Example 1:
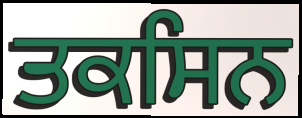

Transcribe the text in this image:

ਤਕਸਿਨ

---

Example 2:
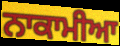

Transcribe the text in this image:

ਨਾਕਾਮੀਆ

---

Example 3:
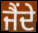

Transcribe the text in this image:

ਜੈਂਦੇ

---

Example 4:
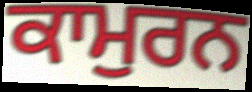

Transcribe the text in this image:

ਕਾਮੁਰਨ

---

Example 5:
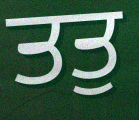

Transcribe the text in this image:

ਤਤੁ